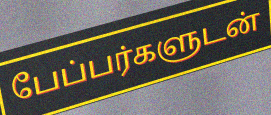
பேப்பர்களுடன்